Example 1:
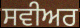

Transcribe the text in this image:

ਸਵੀਅਰ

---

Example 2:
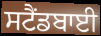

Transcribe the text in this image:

ਸਟੈਂਡਬਾਈ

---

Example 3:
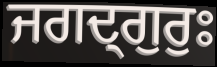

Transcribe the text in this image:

ਜਗਦ੍ਗੁਰੁਃ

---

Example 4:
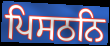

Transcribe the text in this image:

ਪਿਸਠਨਿ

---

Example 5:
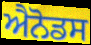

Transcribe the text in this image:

ਐਨੋਡਸ